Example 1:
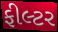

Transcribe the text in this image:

ફીલ્ટર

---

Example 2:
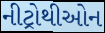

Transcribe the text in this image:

નીટ્રોથીઓન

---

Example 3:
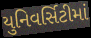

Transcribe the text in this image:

યુનિવર્સિટીમાં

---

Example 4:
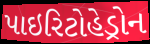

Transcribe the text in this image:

પાઇરિટોહેડ્રોન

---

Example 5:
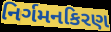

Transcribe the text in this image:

નિર્ગમનકિરણ